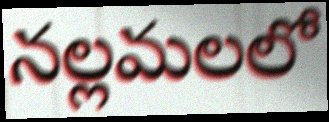
నల్లమలలో